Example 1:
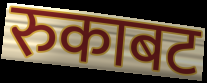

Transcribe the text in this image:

रुकाबट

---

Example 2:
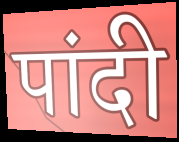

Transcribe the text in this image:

पांदी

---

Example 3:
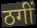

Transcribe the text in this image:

ठगीं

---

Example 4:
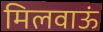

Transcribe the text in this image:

मिलवाऊं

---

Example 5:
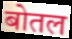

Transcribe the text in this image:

बोतल